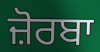
ਜ਼ੋਰਬਾ